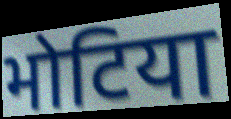
भोटिया